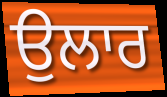
ਉਲਾਰ